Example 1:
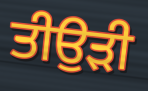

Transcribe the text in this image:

ਤੀਉੜੀ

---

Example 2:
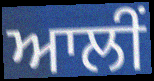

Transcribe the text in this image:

ਆਲੀਂ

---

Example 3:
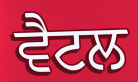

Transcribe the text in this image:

ਵੈਟਲ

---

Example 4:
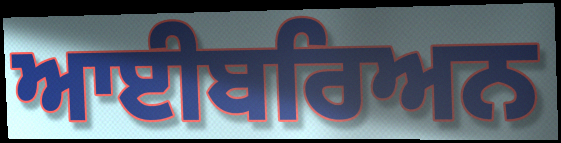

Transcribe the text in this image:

ਆਈਬਰਿਅਨ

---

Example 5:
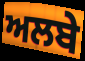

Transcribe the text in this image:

ਅਲਬੇ